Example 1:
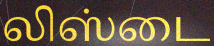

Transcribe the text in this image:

லிஸ்டை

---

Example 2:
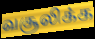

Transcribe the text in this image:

வசூலிக்க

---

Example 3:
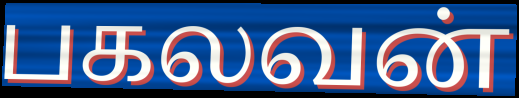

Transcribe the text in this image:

பகலவன்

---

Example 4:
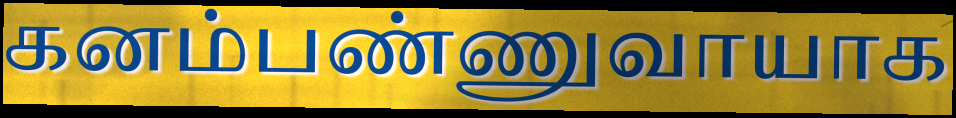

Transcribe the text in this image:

கனம்பண்ணுவாயாக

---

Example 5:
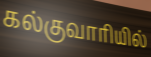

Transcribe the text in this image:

கல்குவாரியில்